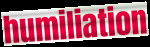
humiliation